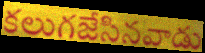
కలుగజేసినవాడు